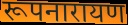
रूपनारायण